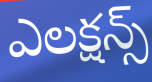
ఎలక్షన్స్